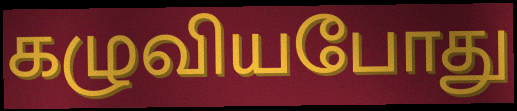
கழுவியபோது